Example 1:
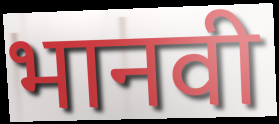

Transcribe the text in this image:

भानवी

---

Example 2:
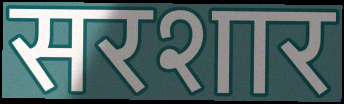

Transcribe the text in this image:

सरशार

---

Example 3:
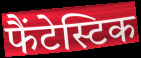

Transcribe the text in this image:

फैंटेस्टिक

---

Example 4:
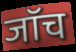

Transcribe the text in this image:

जॉच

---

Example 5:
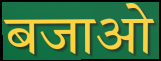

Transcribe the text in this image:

बजाओ